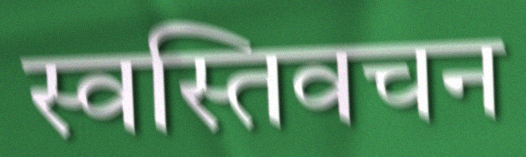
स्वस्तिवचन